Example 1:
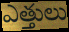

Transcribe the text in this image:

ఎత్తులు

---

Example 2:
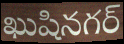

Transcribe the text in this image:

ఖుషినగర్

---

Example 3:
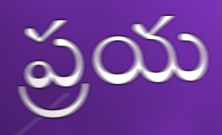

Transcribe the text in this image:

ప్రయ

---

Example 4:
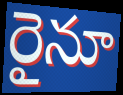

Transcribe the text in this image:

రైనూ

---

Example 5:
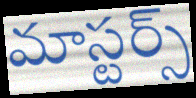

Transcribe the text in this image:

మాస్టర్స్